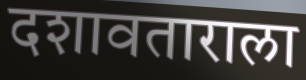
दशावताराला